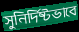
সুনির্দিষ্টভাবে